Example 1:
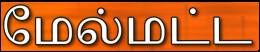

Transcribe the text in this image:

மேல்மட்ட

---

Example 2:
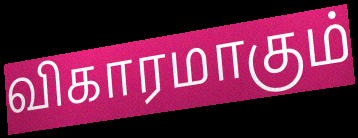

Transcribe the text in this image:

விகாரமாகும்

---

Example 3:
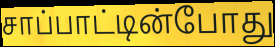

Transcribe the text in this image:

சாப்பாட்டின்போது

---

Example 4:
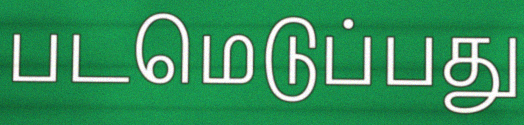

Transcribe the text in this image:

படமெடுப்பது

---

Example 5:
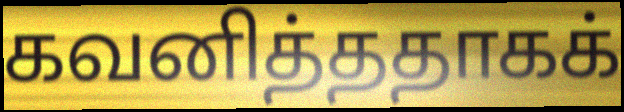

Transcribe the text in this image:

கவனித்ததாகக்